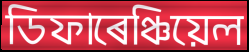
ডিফাৰেঞ্চিয়েল